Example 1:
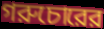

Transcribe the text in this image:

গরুচোরের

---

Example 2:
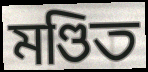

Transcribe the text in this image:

মণ্ডিত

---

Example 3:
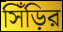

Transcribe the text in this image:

সিঁড়ির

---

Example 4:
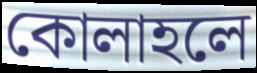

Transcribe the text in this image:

কোলাহলে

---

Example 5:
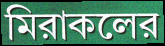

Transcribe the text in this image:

মিরাকলের